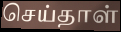
செய்தாள்